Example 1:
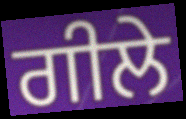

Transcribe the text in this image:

ਗੀਲੇ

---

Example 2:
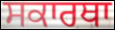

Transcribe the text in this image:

ਸਕਾਰਥਾ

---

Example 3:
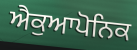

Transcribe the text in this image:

ਐਕੁਆਪੋਨਿਕ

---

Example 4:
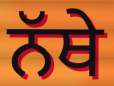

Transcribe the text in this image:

ਨੱਥੇ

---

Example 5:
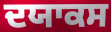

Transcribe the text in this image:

ਦਯਾਕਸ